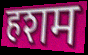
हशम